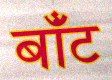
बांँट